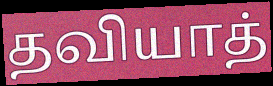
தவியாத்